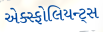
એક્સ્ફોલિયન્ટ્સ